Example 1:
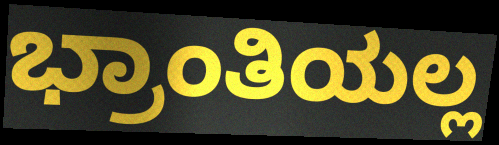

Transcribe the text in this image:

ಭ್ರಾಂತಿಯಲ್ಲ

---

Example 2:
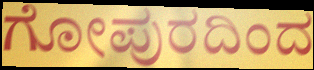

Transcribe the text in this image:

ಗೋಪುರದಿಂದ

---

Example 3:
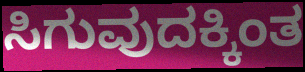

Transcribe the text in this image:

ಸಿಗುವುದಕ್ಕಿಂತ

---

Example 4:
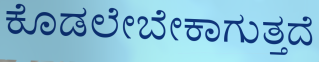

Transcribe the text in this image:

ಕೊಡಲೇಬೇಕಾಗುತ್ತದೆ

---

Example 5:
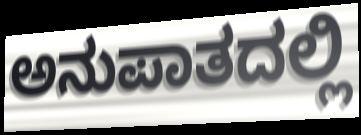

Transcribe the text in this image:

ಅನುಪಾತದಲ್ಲಿ